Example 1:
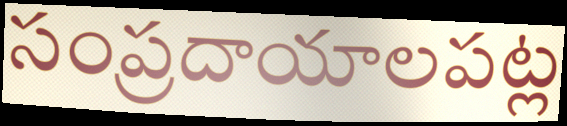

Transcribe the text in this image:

సంప్రదాయాలపట్ల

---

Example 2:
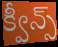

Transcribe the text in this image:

క్వీన్స్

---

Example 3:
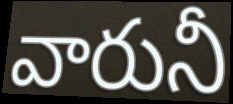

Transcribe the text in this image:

వారునీ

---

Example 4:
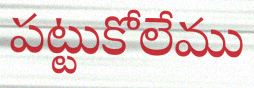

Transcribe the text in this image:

పట్టుకోలేము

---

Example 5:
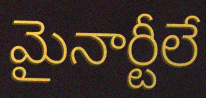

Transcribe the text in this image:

మైనార్టీలే